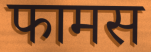
फामस